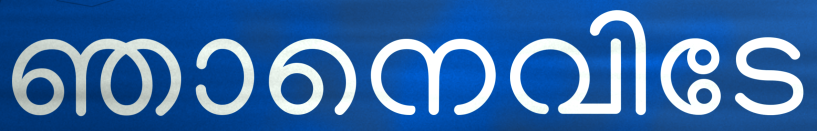
ഞാനെവിടേ